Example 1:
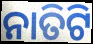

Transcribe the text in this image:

ନାତିଟି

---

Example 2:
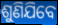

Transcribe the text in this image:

ଶୁଣିଯିବେ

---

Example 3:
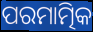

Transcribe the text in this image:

ପରମାତ୍ମିକ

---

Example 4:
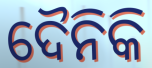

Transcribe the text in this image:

ଦୈନିକି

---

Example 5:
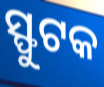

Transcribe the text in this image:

ସ୍ଫୁଟକ